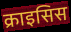
क्राइसिस